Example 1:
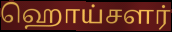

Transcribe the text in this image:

ஹொய்சளர்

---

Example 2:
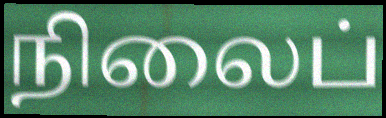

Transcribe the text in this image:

நிலைப்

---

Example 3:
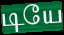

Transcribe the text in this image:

டியே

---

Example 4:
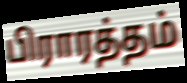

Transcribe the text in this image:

பிராரத்தம்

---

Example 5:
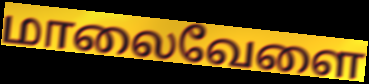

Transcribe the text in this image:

மாலைவேளை